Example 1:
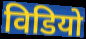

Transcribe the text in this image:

विडियो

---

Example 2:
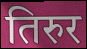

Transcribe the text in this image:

तिरुर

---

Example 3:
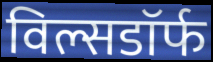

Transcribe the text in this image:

विल्सडॉर्फ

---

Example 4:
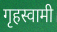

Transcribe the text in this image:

गृहस्वामी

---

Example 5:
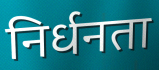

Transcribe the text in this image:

निर्धनता